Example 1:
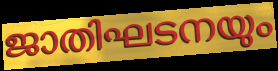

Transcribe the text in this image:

ജാതിഘടനയും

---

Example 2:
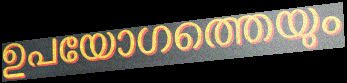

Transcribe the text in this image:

ഉപയോഗത്തെയും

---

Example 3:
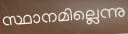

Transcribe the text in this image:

സ്ഥാനമില്ലെന്നു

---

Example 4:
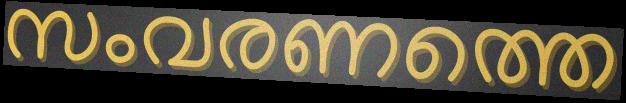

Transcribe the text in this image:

സംവരണത്തെ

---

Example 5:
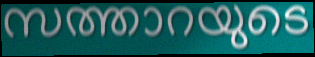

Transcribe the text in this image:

സത്താറയുടെ